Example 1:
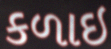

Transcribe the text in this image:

કળાઇ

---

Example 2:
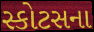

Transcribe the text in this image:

સ્કોટસના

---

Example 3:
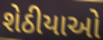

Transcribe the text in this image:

શેઠીયાઓ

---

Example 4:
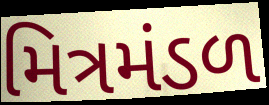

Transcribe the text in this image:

મિત્રમંડળ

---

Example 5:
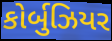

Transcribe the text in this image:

કોર્બુઝિયર